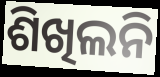
ଶିଖିଲନି